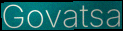
Govatsa